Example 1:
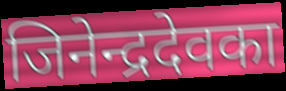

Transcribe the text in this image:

जिनेन्द्रदेवका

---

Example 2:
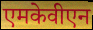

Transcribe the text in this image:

एमकेवीएन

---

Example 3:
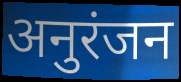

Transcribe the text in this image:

अनुरंजन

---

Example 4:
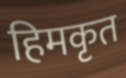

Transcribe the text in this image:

हिमकृत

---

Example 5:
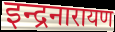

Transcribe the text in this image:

इन्द्रनारायण